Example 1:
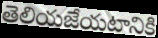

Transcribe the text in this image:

తెలియజేయటానికి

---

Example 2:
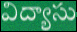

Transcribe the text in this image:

విద్యాసు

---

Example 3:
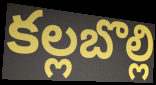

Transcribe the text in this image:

కల్లబొల్లి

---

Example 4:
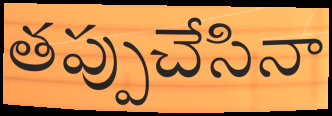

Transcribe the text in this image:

తప్పుచేసినా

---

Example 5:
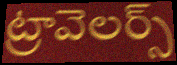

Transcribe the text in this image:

ట్రావెలర్స్